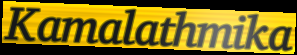
Kamalathmika